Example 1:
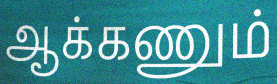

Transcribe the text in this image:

ஆக்கணும்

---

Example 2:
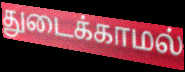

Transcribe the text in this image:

துடைக்காமல்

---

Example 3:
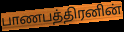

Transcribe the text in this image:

பாணபத்திரனின்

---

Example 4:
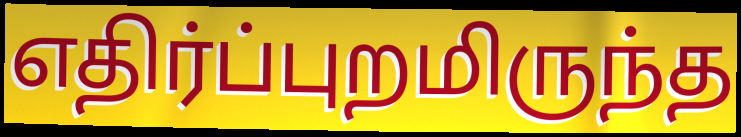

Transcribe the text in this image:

எதிர்ப்புறமிருந்த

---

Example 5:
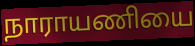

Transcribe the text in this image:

நாராயணியை